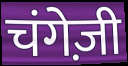
चंगेज़ी